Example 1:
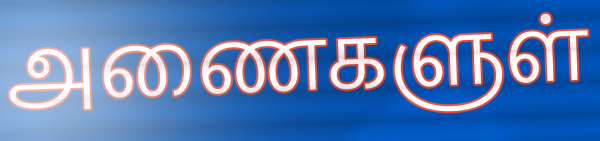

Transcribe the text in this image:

அணைகளுள்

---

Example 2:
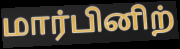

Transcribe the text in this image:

மார்பினிற்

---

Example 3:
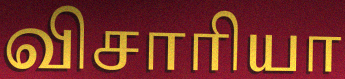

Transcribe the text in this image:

விசாரியா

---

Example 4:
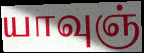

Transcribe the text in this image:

யாவுஞ்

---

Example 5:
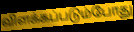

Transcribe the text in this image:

விளக்கப்படும்போது